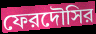
ফেরদৌসির